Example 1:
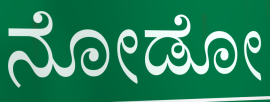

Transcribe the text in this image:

ನೋಡೋ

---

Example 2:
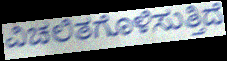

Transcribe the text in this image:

ವಿಚಲಿತಗೊಳಿಸುತ್ತಿದೆ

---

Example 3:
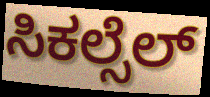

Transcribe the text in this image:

ಸಿಕಲ್ಸೆಲ್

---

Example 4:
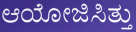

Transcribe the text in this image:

ಆಯೋಜಿಸಿತ್ತು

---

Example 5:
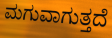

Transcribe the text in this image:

ಮಗುವಾಗುತ್ತದೆ